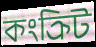
কংক্রিট